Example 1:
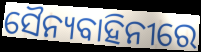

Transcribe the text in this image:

ସୈନ୍ୟବାହିନୀରେ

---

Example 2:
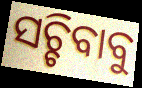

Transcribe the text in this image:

ସଚ୍ଚିବାବୁ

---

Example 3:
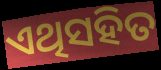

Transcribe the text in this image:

ଏଥିସହିତ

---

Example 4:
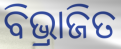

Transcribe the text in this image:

ବିଭ୍ରାଜିତ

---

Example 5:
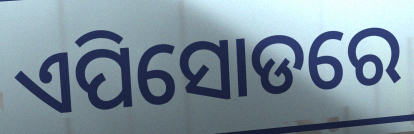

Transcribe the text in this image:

ଏପିସୋଡରେ